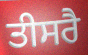
ਤੀਸਰੈ